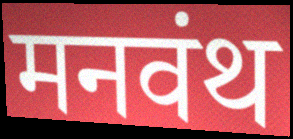
मनवंथ